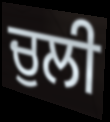
ਚੁਲੀ